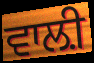
ਵਾਲ਼ੀ